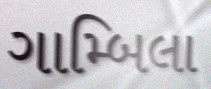
ગામ્બિલા